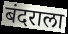
बंदराला